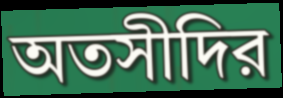
অতসীদির